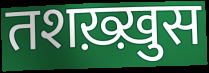
तशख़्ख़ुस